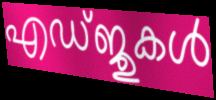
എഡ്ജുകൾ